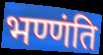
भण्णंति